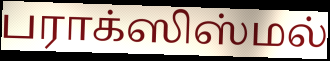
பராக்ஸிஸ்மல்